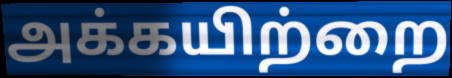
அக்கயிற்றை